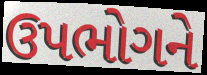
ઉપભોગને